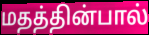
மதத்தின்பால்